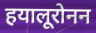
हयालूरोनन